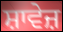
ਸ਼ਾਵੇਜ਼